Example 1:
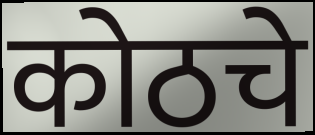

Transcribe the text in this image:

कोठचे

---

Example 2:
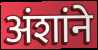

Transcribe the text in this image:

अंशांने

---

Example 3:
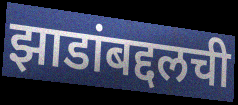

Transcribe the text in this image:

झाडांबद्दलची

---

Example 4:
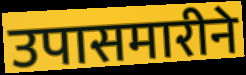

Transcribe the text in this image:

उपासमारीने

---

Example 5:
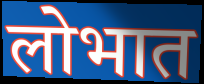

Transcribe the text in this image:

लोभात